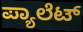
ಪ್ಯಾಲೆಟ್